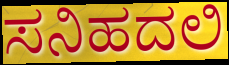
ಸನಿಹದಲಿ